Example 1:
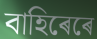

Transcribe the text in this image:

বাহিৰেৰে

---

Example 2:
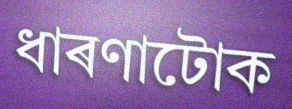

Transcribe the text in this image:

ধাৰণাটোক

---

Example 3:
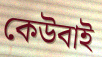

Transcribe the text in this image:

কেউবাই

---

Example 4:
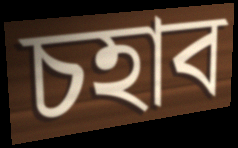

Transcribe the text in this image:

চহাব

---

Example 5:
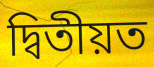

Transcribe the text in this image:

দ্বিতীয়ত